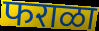
फराळा